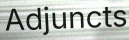
Adjuncts